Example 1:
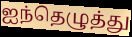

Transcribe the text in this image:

ஐந்தெழுத்து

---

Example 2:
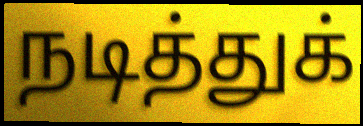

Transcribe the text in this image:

நடித்துக்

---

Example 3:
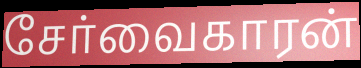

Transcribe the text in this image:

சேர்வைகாரன்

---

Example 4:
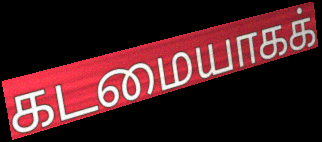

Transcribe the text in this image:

கடமையாகக்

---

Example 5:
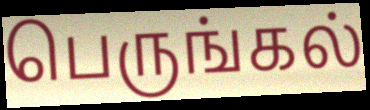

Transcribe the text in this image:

பெருங்கல்